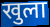
खुला